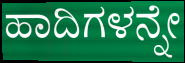
ಹಾದಿಗಳನ್ನೇ